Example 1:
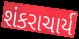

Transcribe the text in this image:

શંકરાચાર્ય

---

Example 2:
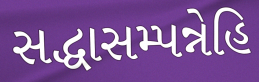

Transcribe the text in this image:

સદ્ધાસમ્પન્નેહિ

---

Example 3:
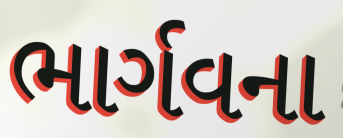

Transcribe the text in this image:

ભાર્ગવના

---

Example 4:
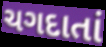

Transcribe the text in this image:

ચગદાતાં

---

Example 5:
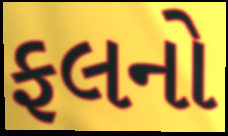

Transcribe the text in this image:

ફલનો